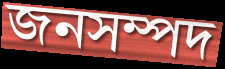
জনসম্পদ